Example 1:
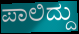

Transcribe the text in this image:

ಪಾಲಿದ್ದು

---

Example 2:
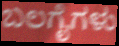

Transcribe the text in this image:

ಬಲಗೈಗಳು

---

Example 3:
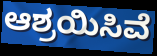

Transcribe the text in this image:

ಆಶ್ರಯಿಸಿವೆ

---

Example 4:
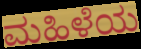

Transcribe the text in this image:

ಮಹಿಳೆಯ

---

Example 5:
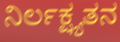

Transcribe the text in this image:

ನಿರ್ಲಕ್ಷ್ಯತನ